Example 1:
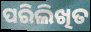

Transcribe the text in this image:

ପରିଲିଖିତ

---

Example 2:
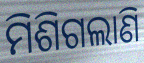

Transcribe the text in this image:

ମିଶିଗଲାଣି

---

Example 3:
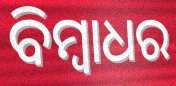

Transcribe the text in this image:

ବିମ୍ବାଧର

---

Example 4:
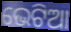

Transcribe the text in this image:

ଭେଟିଆ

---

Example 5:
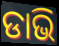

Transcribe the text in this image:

ଡାଭି